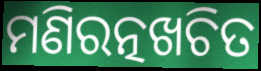
ମଣିରତ୍ନଖଚିତ